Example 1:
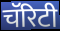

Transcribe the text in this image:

चॅरिटी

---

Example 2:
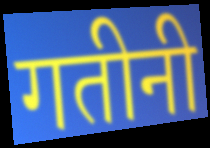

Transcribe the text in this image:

गतीनी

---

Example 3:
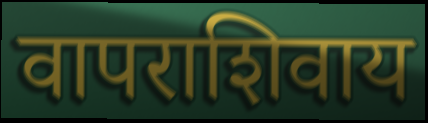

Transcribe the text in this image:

वापराशिवाय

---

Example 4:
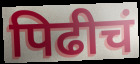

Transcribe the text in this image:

पिढीचं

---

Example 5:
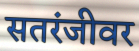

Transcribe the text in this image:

सतरंजीवर